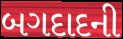
બગદાદની